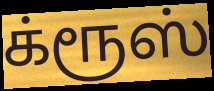
க்ரூஸ்